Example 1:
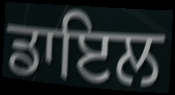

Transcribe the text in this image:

ਡਾਇਲ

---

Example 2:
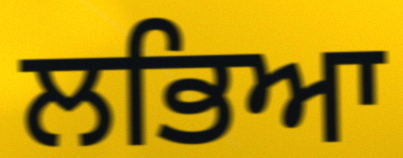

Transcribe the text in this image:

ਲਭਿਆ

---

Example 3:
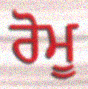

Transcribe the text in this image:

ਰੋਮੂ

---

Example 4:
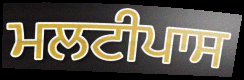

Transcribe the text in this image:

ਮਲਟੀਪਾਸ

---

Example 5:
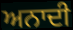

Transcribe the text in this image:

ਅਨਾਦੀ